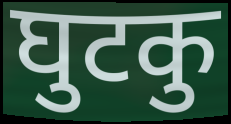
घुटकु